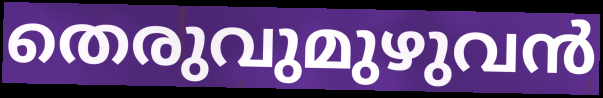
തെരുവുമുഴുവൻ